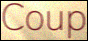
Coup